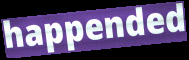
happended